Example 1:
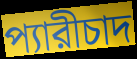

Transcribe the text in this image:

প্যারীচাদ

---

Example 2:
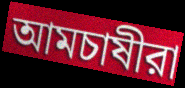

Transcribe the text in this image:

আমচাষীরা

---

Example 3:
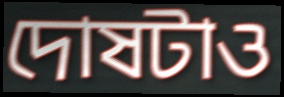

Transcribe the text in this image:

দোষটাও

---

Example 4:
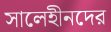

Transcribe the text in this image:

সালেহীনদের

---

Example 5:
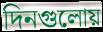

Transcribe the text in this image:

দিনগুলোয়